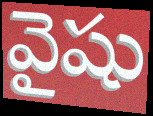
వైషు